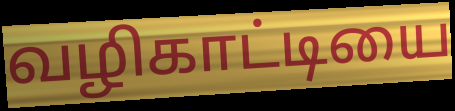
வழிகாட்டியை